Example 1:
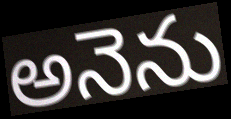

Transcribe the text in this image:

అనెను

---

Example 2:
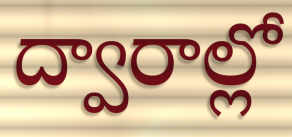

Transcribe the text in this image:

ద్వారాల్లో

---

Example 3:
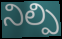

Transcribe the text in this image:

నిల్పి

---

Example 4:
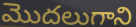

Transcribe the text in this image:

మొదలుగాని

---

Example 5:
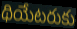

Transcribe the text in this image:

థియేటరుకు